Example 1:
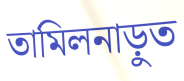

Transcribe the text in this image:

তামিলনাড়ুত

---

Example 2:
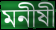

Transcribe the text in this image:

মনীষী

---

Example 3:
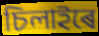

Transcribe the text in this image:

চিলাইৰে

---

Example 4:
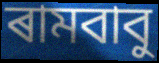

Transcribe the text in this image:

ৰামবাবু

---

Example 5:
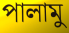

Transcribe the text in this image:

পালামু